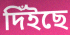
দিঁইছে